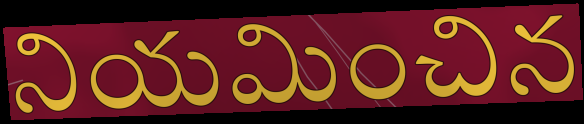
నియమించిన